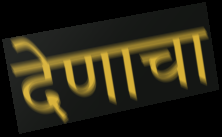
देणाचा